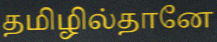
தமிழில்தானே